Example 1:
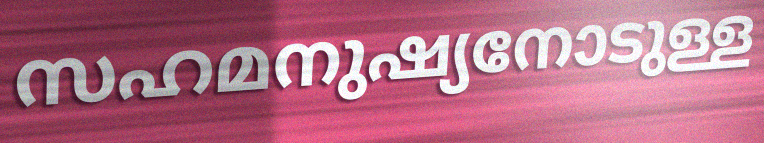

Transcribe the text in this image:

സഹമനുഷ്യനോടുള്ള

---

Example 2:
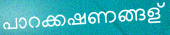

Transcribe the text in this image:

പാറക്കഷണങ്ങള്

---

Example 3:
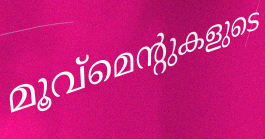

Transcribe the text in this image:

മൂവ്മെന്റുകളുടെ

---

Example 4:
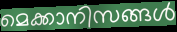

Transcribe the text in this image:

മെക്കാനിസങ്ങൾ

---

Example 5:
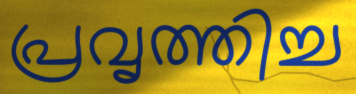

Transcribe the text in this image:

പ്രവൃത്തിച്ച